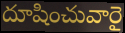
దూషించువారై